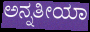
ಅನ್ನತೀಯಾ